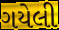
ગયેલી